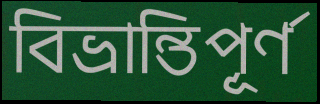
বিভ্রান্তিপূর্ণ